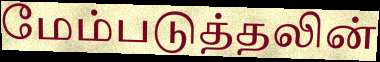
மேம்படுத்தலின்